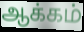
ஆக்கம்